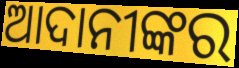
ଆଦାନୀଙ୍କର